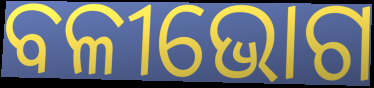
ବଳୀଭୋଗ